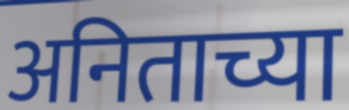
अनिताच्या